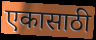
एकासाठी